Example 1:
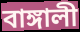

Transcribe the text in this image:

বাঙ্গালী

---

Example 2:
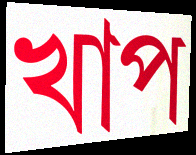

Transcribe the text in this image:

খাপ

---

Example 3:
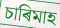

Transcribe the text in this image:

চাৰিমাহ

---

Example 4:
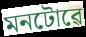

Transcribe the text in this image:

মনটোৱে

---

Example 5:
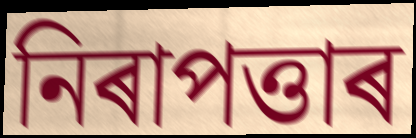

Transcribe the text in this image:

নিৰাপত্তাৰ